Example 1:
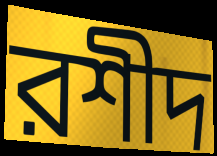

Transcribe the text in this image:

রশীদ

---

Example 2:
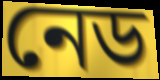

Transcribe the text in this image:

নেড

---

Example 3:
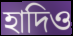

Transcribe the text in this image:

হাদিও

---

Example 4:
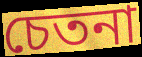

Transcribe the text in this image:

চেতনা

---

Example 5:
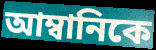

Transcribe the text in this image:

আম্বানিকে